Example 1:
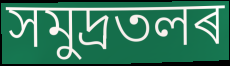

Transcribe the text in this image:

সমুদ্ৰতলৰ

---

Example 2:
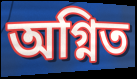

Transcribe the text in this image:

অগ্নিত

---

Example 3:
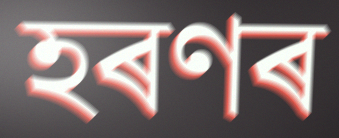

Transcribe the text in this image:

হৰণৰ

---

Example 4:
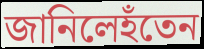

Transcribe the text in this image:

জানিলেহঁতেন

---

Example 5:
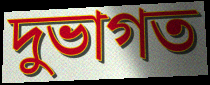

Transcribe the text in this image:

দুভাগত